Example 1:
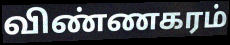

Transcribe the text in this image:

விண்ணகரம்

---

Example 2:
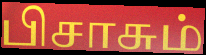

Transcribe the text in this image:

பிசாசும்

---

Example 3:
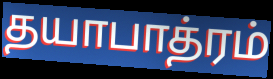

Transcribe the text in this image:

தயாபாத்ரம்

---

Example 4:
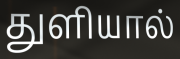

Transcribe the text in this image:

துளியால்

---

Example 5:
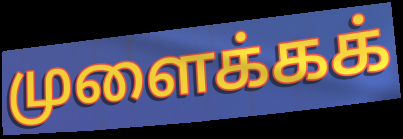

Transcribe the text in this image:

முளைக்கக்